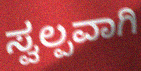
ಸ್ವಲ್ಪವಾಗಿ